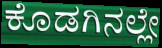
ಕೊಡಗಿನಲ್ಲೇ